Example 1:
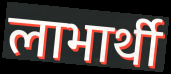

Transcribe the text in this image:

लाभार्थी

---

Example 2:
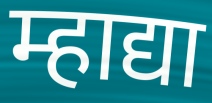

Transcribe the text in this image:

म्हाद्या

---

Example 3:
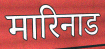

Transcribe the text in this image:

मारिनाड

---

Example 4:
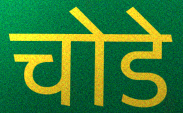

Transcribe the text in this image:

चोडे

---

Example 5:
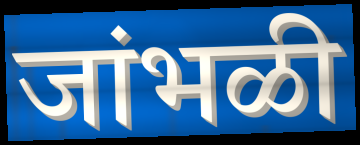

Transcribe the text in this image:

जांभळी